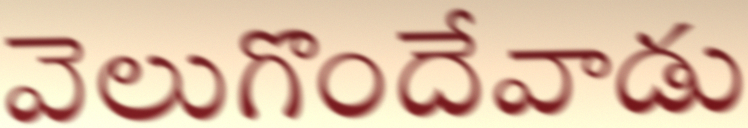
వెలుగొందేవాడు